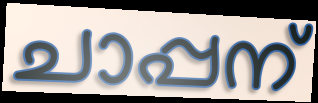
ചാപ്പന്